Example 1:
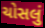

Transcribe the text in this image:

ચોસલું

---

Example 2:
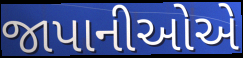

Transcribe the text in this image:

જાપાનીઓએ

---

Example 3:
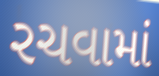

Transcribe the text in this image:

રચવામાં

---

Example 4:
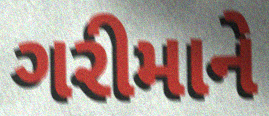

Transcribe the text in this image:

ગરીમાને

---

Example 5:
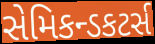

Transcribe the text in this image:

સેમિકન્ડકટર્સ